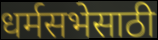
धर्मसभेसाठी